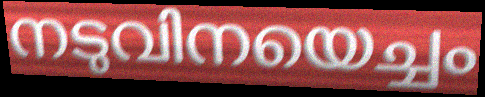
നടുവിനയെച്ചം